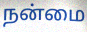
நன்மை